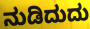
ನುಡಿದುದು